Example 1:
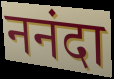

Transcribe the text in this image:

ननंदा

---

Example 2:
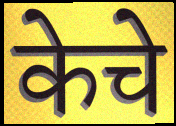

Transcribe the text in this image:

केचे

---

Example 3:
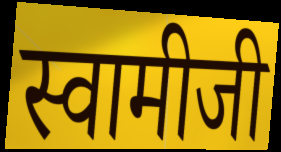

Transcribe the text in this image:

स्वामीजी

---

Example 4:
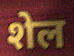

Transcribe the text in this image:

शेल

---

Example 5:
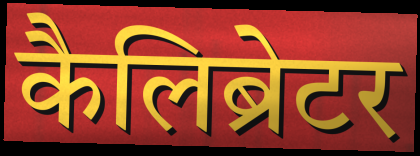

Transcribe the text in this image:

कैलिब्रेटर